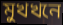
মুখখনে